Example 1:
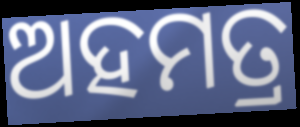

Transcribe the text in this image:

ଅହମତ୍ର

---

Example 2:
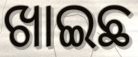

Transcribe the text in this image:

ଖାଇଛ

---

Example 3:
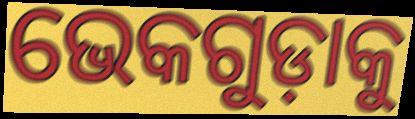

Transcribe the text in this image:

ଭେକଗୁଡ଼ାକୁ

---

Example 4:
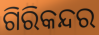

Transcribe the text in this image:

ଗିରିକନ୍ଦର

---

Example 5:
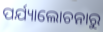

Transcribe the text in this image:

ପର୍ଯ୍ୟାଲୋଚନାରୁ